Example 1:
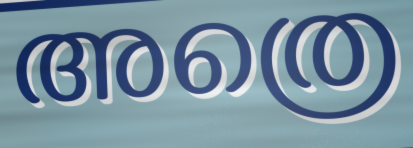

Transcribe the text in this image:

അത്രെ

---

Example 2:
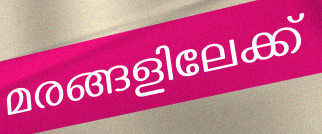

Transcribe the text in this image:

മരങ്ങളിലേക്ക്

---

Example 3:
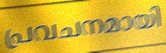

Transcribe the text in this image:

പ്രവചനമായി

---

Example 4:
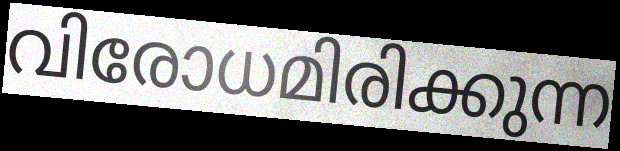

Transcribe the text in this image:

വിരോധമിരിക്കുന്ന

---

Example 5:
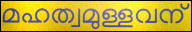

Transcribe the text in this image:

മഹത്വമുള്ളവന്